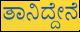
ತಾನಿದ್ದೇನೆ